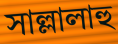
সাল্লালাহু